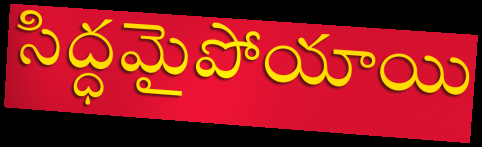
సిద్ధమైపోయాయి